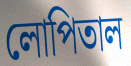
লোপিতাল